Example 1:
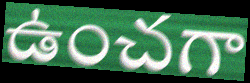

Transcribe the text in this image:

ఉంచగా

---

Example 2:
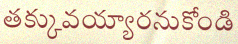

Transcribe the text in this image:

తక్కువయ్యారనుకోండి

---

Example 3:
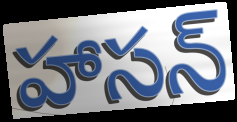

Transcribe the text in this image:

హాసన్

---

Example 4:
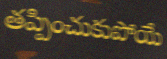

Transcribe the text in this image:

తప్పించుకుపోయే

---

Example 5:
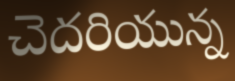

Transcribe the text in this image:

చెదరియున్న